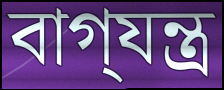
বাগ্‌যন্ত্র